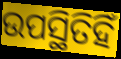
ଉପସ୍ଥିତିହିଁ